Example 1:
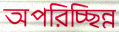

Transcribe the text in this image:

অপরিচ্ছিন্ন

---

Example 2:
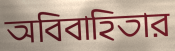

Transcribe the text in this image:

অবিবাহিতার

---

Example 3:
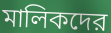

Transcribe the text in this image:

মালিকদের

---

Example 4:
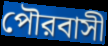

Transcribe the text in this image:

পৌরবাসী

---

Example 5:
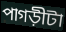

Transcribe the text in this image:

পাগড়ীটা